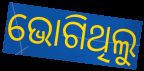
ଭୋଗିଥିଲୁ